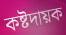
কষ্টদায়ক